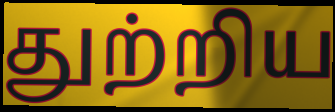
துற்றிய